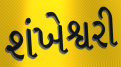
શંખેશ્વરી